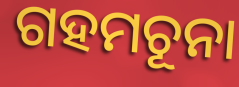
ଗହମଚୂନା